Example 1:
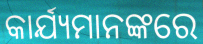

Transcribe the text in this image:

କାର୍ଯ୍ୟମାନଙ୍କରେ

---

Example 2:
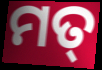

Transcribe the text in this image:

ମତ୍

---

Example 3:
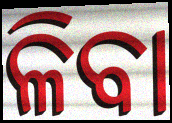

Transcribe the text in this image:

ଳିବା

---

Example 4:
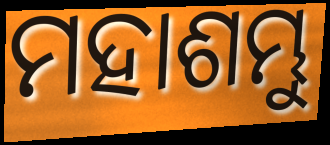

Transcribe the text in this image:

ମହାଶମ୍ଭୁ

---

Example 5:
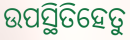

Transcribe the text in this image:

ଉପସ୍ଥିତିହେତୁ